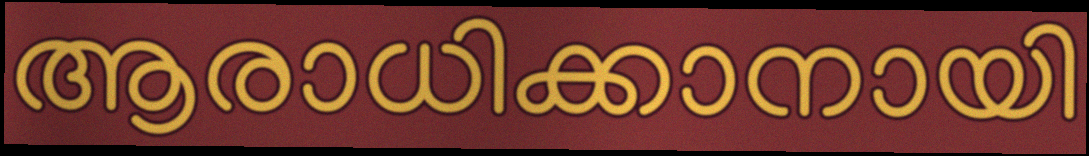
ആരാധിക്കാനായി